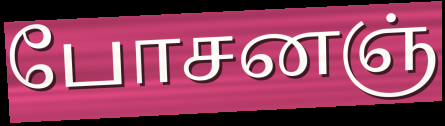
போசனஞ்